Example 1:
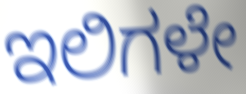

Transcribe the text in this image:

ಇಲಿಗಳೇ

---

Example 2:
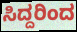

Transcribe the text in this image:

ಸಿದ್ದರಿಂದ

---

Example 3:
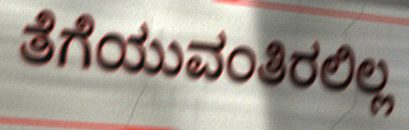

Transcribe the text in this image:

ತೆಗೆಯುವಂತಿರಲಿಲ್ಲ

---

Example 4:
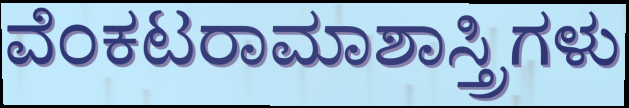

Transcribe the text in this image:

ವೆಂಕಟರಾಮಾಶಾಸ್ತ್ರಿಗಳು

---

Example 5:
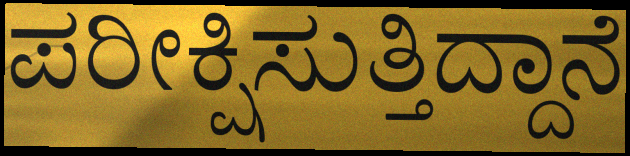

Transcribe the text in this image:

ಪರೀಕ್ಷಿಸುತ್ತಿದ್ದಾನೆ